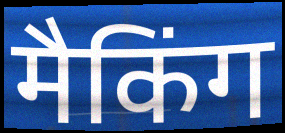
मैकिंग